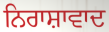
ਨਿਰਾਸ਼ਾਵਾਦ